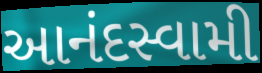
આનંદસ્વામી